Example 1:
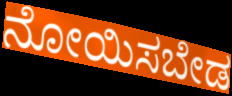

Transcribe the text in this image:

ನೋಯಿಸಬೇಡ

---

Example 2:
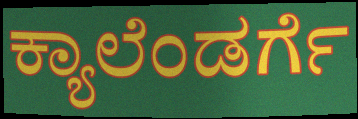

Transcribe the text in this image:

ಕ್ಯಾಲೆಂಡರ್ಗೆ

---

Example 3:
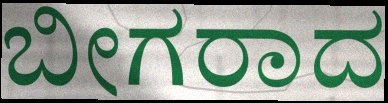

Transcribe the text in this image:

ಬೀಗರಾದ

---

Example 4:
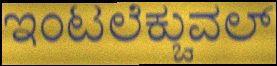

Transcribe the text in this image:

ಇಂಟಲೆಕ್ಚುವಲ್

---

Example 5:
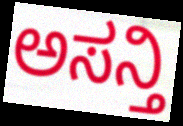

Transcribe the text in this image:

ಅಸನ್ತಿ